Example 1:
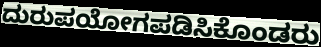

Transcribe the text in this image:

ದುರುಪಯೋಗಪಡಿಸಿಕೊಂಡರು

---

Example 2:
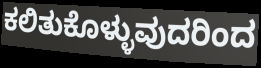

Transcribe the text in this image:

ಕಲಿತುಕೊಳ್ಳುವುದರಿಂದ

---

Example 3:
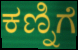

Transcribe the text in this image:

ಕಣ್ನಿಗೆ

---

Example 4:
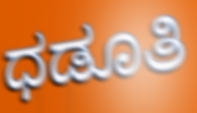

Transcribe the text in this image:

ಧಡೂತಿ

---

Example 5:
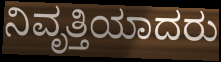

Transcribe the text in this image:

ನಿವೃತ್ತಿಯಾದರು